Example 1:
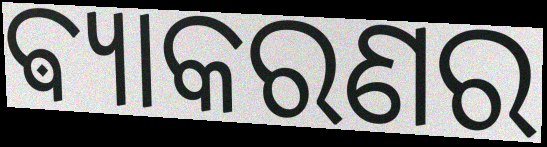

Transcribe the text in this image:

ଵ୍ୟାକରଣର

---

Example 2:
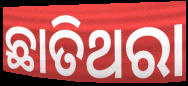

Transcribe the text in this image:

ଛାତିଥରା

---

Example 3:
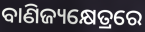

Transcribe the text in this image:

ବାଣିଜ୍ୟକ୍ଷେତ୍ରରେ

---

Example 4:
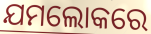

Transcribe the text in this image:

ଯମଲୋକରେ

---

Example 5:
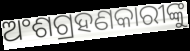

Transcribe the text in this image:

ଅଂଶଗ୍ରହଣକାରୀଙ୍କୁ